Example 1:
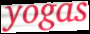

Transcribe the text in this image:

yogas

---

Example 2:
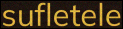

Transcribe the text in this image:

sufletele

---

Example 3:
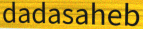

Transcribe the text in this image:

dadasaheb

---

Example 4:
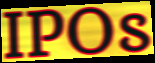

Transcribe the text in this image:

IPOs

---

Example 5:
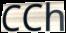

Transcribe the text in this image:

CCh